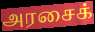
அரசைக்